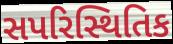
સપરિસ્થિતિક